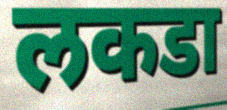
लकडा